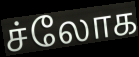
ச்லோக